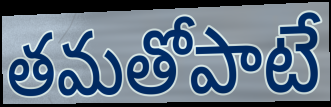
తమతోపాటే